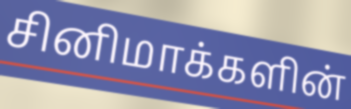
சினிமாக்களின்